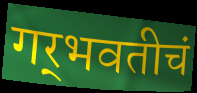
गर्भवतीचं